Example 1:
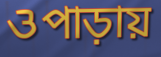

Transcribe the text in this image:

ওপাড়ায়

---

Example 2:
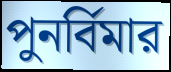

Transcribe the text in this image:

পুনর্বিমার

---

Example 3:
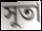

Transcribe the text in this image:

সুতা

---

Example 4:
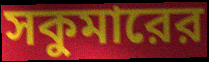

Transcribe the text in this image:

সকুমারের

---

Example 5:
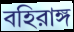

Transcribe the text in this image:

বহিরাঙ্গ